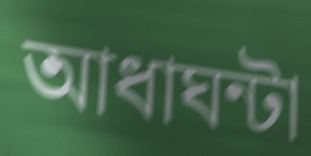
আধাঘন্টা